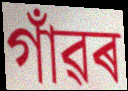
গাঁৱৰ